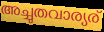
അച്ചുതവാര്യര്